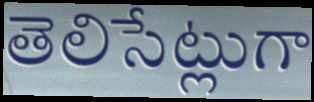
తెలిసేట్లుగా